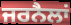
ਜਰਨੈਲਾਂ